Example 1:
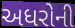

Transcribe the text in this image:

અધરોની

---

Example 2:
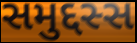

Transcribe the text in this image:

સમુદ્દસ્સ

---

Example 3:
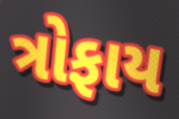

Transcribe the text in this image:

ત્રોફાય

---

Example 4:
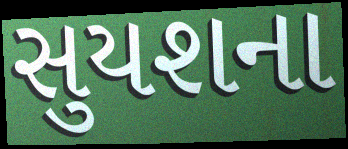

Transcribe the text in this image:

સુયશના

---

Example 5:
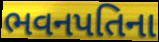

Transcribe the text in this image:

ભવનપતિના